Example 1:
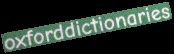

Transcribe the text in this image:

oxforddictionaries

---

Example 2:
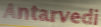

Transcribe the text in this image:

Antarvedi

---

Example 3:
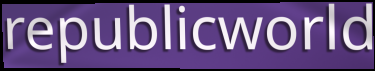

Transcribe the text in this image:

republicworld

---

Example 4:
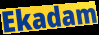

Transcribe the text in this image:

Ekadam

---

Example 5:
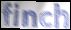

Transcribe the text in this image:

finch